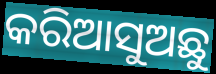
କରିଆସୁଅଛୁ